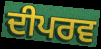
ਦੀਪਰਵ